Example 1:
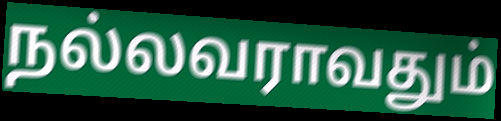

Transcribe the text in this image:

நல்லவராவதும்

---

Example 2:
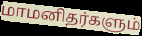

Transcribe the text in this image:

மாமனிதர்களும்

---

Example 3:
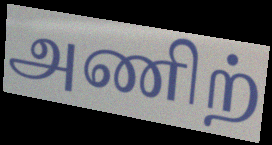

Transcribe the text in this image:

அணிற்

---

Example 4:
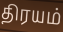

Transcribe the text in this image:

திரயம்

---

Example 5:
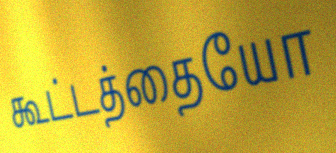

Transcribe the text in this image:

கூட்டத்தையோ